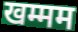
खम्मम